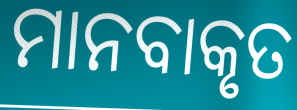
ମାନବାକୃତ